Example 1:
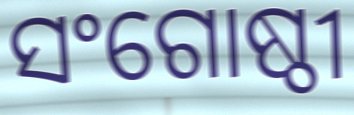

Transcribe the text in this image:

ସଂଗୋଷ୍ଠୀ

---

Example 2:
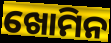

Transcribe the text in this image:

ଖୋମିନ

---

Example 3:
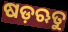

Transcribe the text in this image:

ଷଡ଼ଋତୁ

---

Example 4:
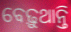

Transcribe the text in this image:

ବେଢ଼ୁଥାନ୍ତି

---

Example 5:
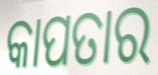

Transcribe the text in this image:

କାପତାର